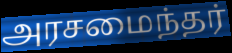
அரசமைந்தர்